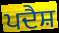
ਪਦੈਸ਼